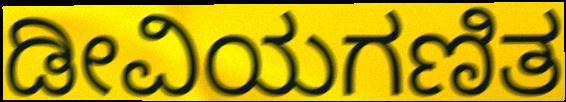
ಡೀವಿಯಗಣಿತ